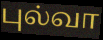
புல்வா